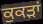
ਕੁਕੜਾਂ